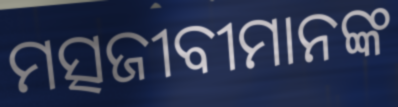
ମତ୍ସଜୀବୀମାନଙ୍କ